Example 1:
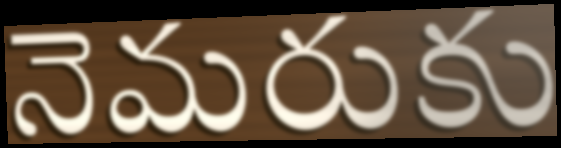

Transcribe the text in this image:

నెమరుకు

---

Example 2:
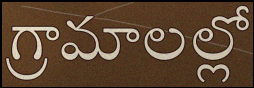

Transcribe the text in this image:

గ్రామాలల్లో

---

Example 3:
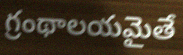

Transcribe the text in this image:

గ్రంథాలయమైతే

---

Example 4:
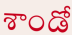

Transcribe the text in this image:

శాండో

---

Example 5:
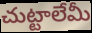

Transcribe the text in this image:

చుట్టాలేమీ